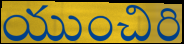
యుంచిరి